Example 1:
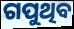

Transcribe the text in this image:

ଗପୁଥିବ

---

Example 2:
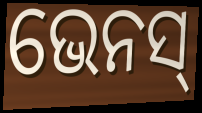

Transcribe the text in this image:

ଭେନସ୍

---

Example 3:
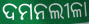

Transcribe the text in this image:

ଦମନଲୀଳା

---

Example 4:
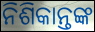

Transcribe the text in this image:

ନିଶିକାନ୍ତଙ୍କ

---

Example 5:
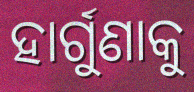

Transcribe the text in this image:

ହାର୍ଗୁଣାକୁ